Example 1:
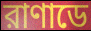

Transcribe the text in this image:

রাণাডে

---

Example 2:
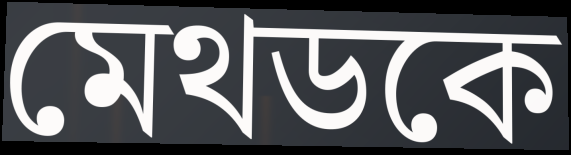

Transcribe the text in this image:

মেথডকে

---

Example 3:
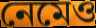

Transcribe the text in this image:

নেমেও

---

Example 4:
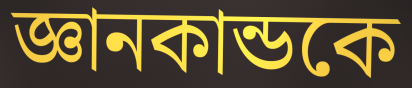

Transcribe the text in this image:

জ্ঞানকান্ডকে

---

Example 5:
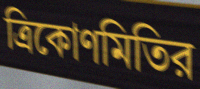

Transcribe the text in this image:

ত্রিকোণমিতির